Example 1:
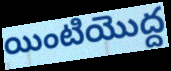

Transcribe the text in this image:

యింటియొద్ద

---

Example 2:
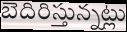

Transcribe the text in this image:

బెదిరిస్తున్నట్లు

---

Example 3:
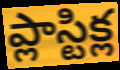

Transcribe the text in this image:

ప్లాస్టిక్ల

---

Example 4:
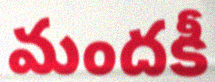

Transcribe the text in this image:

మందకీ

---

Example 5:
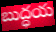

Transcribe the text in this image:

బుద్ధయ